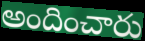
అందించారు